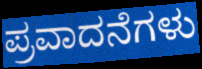
ಪ್ರವಾದನೆಗಳು